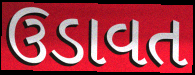
ઉડાવત